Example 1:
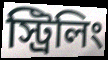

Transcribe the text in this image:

স্ট্রিলিং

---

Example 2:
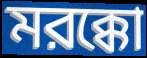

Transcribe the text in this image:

মরক্কো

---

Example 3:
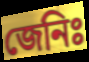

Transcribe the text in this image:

জেনিঃ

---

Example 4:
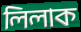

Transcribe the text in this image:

লিলাক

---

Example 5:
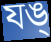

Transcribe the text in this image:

যঙ্